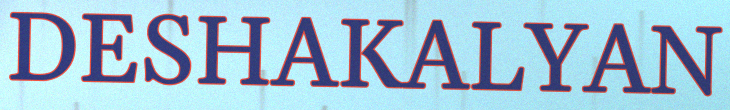
DESHAKALYAN